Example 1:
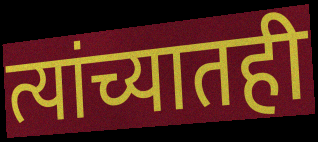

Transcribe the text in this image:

त्यांच्यातही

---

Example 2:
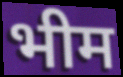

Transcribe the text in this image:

भीम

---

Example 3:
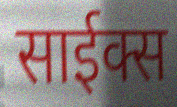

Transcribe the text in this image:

साईक्स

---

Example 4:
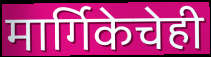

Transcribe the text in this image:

मार्गिकेचेही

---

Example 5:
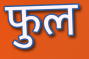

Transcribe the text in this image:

फुल